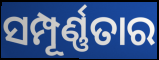
ସମ୍ପୂର୍ଣ୍ଣତାର